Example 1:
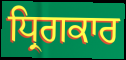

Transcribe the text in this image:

ਧ੍ਰਿਗਕਾਰ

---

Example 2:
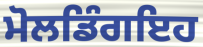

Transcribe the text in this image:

ਮੋਲਡਿੰਗਇਹ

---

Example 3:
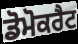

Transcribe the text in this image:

ਡੋਮੋਕਰੈਟ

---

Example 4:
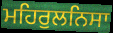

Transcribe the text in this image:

ਮਹਿਰੁਲਨਿਸਾ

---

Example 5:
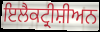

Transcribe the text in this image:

ਇਲੈਕਟ੍ਰੀਸ਼ੀਅਨ